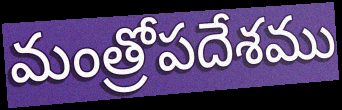
మంత్రోపదేశము